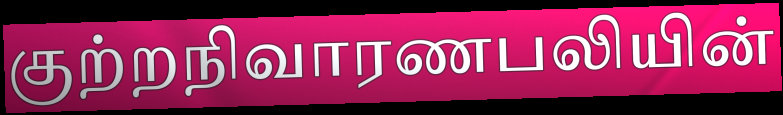
குற்றநிவாரணபலியின்